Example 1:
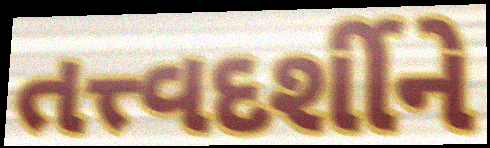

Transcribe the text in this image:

તત્ત્વદર્શીને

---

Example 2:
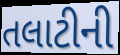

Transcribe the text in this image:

તલાટીની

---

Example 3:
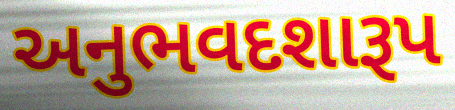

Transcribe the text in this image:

અનુભવદશારૂપ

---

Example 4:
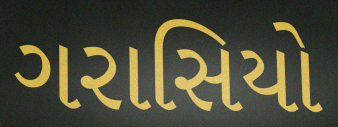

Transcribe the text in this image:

ગરાસિયો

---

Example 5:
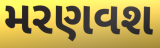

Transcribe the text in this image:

મરણવશ